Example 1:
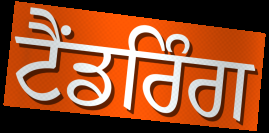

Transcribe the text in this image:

ਟੈਂਡਰਿੰਗ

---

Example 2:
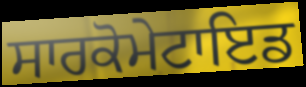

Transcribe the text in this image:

ਸਾਰਕੋਮੇਟਾਇਡ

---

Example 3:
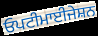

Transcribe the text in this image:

ਓਪਟੀਮਾਈਜੇਸ਼ਨ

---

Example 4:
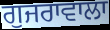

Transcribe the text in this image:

ਗੁਜਰਾਵਾਲਾ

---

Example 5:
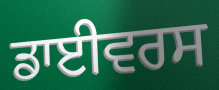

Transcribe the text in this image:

ਡਾਈਵਰਸ